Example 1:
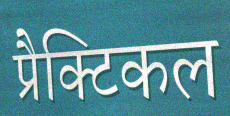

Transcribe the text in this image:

प्रैक्टिकल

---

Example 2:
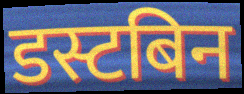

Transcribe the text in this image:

डस्टबिन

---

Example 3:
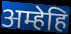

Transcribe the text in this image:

अम्हेहि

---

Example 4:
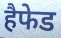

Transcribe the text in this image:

हैफेड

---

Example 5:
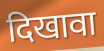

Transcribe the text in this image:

दिखावा